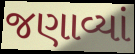
જણાવ્યાં